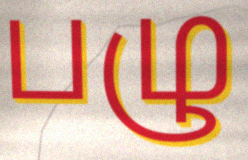
பழு